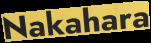
Nakahara